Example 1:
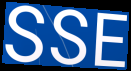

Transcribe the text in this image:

SSE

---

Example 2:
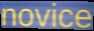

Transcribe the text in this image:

novice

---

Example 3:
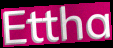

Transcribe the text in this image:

Ettha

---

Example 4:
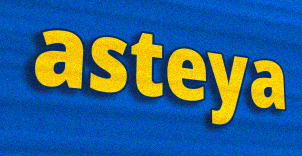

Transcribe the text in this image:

asteya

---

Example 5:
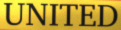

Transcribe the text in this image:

UNITED